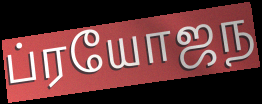
ப்ரயோஜந